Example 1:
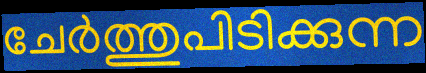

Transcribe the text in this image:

ചേർത്തുപിടിക്കുന്ന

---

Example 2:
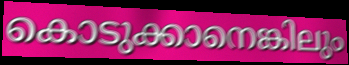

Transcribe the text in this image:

കൊടുക്കാനെങ്കിലും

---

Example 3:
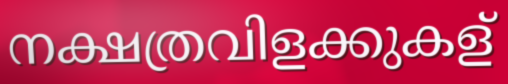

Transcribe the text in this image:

നക്ഷത്രവിളക്കുകള്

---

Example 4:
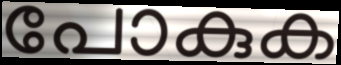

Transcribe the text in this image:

പോകുക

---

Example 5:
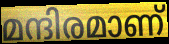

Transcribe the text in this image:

മന്ദിരമാണ്